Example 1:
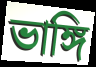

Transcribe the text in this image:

ভাঙ্গি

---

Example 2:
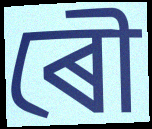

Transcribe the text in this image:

ৰৌ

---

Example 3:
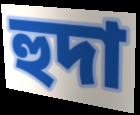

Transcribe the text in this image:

হুদা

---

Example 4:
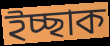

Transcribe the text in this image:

ইচ্ছাক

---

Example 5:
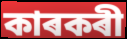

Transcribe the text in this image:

কাৰকৰী